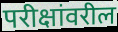
परीक्षांवरील